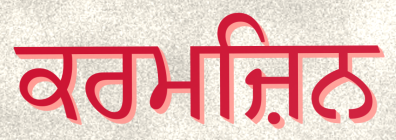
ਕਰਮਜ਼ਿਨ